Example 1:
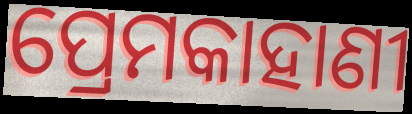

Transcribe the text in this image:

ପ୍ରେମକାହାଣୀ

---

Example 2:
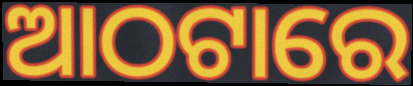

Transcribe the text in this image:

ଆଠଟାରେ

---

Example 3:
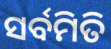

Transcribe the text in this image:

ସର୍ବମିତି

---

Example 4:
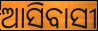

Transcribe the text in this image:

ଆସିବାସୀ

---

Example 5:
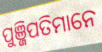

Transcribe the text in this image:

ପୁଞ୍ଜିପତିମାନେ